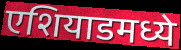
एशियाडमध्ये